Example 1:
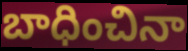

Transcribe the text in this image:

బాధించినా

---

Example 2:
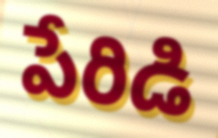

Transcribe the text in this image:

పేరిడి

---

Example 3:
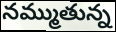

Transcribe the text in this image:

నమ్ముతున్న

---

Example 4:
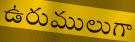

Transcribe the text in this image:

ఉరుములుగా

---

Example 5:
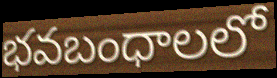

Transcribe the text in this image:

భవబంధాలలో